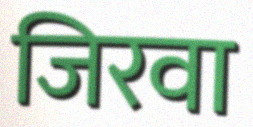
जिरवा